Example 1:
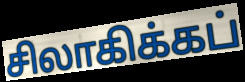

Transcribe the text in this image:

சிலாகிக்கப்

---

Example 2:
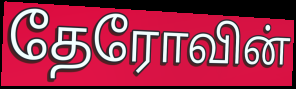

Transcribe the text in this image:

தேரோவின்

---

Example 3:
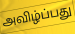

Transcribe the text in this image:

அவிழ்ப்பது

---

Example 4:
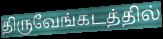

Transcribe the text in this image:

திருவேங்கடத்தில்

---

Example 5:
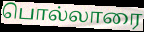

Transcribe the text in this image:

பொல்லாரை